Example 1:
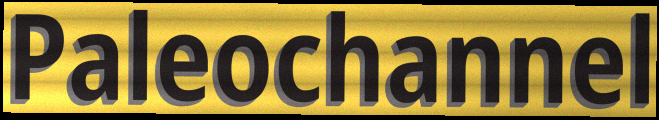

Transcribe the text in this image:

Paleochannel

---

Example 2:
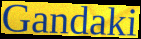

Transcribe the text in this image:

Gandaki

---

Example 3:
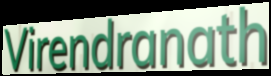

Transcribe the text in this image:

Virendranath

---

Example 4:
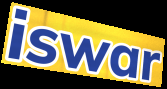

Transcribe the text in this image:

iswar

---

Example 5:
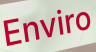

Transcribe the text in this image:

Enviro